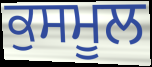
ਕੁਸਮੂਲ